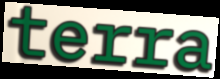
terra